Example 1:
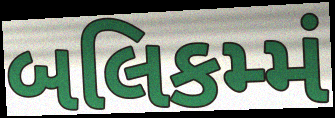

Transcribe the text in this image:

બલિકમ્મં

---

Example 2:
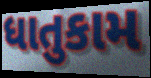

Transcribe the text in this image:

ધાતુકામ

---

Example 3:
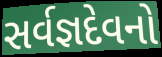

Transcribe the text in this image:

સર્વજ્ઞદેવનો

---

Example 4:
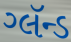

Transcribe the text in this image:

ગ્લૅન્ડ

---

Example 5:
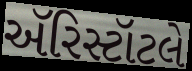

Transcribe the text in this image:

ઍરિસ્ટૉટલે